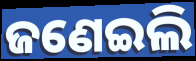
ଜଣେଇଲି